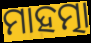
ମାହତ୍ମା